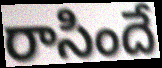
రాసిందే